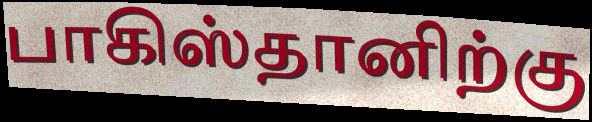
பாகிஸ்தானிற்கு